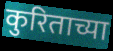
कुरिताच्या